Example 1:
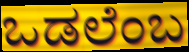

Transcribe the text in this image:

ಒಡಲೆಂಬ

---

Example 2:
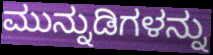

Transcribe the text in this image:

ಮುನ್ನುಡಿಗಳನ್ನು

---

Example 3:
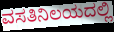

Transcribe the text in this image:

ವಸತಿನಿಲಯದಲ್ಲಿ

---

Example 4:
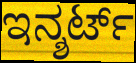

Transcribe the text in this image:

ಇನ್ಶರ್ಟ್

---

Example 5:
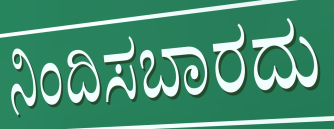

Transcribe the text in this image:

ನಿಂದಿಸಬಾರದು